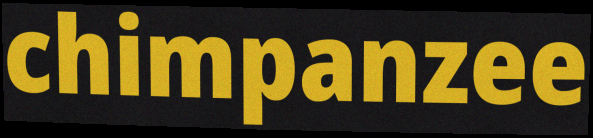
chimpanzee